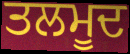
ਤਲਮੂਦ